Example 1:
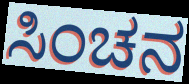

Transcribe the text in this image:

ಸಿಂಚನ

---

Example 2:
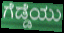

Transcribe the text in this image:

ಗೆಡ್ಡೆಯು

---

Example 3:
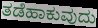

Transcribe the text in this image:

ತಡೆಹಾಕುವುದು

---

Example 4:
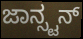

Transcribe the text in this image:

ಜಾನ್ಸ್ಟನ್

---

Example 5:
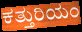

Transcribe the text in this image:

ಕತ್ತುರಿಯಂ